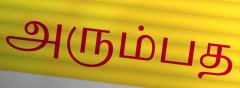
அரும்பத